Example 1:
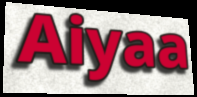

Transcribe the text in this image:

Aiyaa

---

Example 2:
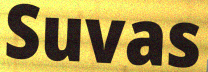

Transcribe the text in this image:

Suvas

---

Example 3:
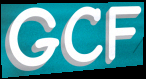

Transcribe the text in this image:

GCF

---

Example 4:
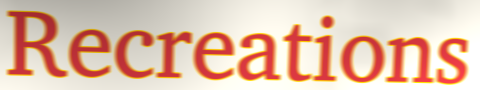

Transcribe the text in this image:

Recreations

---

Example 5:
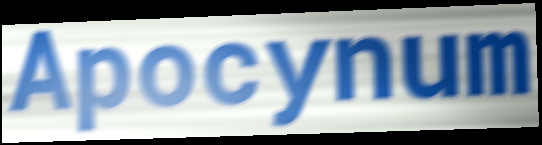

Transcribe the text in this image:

Apocynum